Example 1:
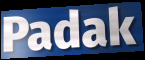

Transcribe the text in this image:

Padak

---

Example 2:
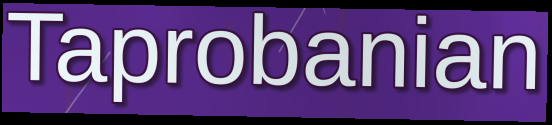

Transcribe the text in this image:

Taprobanian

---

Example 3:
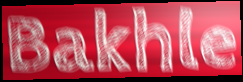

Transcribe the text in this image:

Bakhle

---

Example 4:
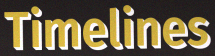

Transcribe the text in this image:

Timelines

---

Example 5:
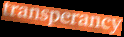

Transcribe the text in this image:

transperancy